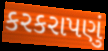
કરકરાપણું